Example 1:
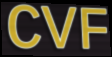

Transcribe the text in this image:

CVF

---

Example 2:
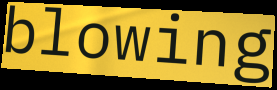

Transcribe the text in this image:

blowing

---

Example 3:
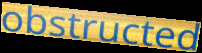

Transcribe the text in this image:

obstructed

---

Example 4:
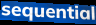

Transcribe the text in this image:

sequential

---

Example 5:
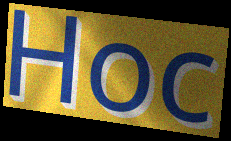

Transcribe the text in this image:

Hoc